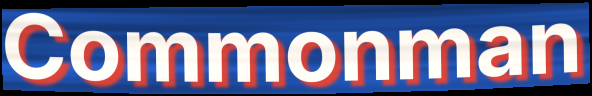
Commonman